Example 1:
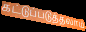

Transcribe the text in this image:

கட்டுப்படுத்தலாம்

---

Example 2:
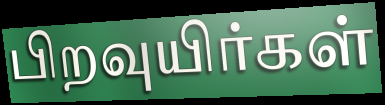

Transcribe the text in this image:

பிறவுயிர்கள்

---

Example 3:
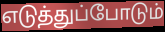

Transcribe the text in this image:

எடுத்துப்போடும்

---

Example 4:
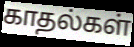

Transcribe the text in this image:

காதல்கள்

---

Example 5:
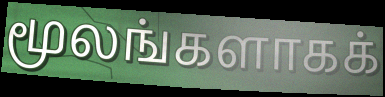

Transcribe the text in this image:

மூலங்களாகக்